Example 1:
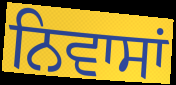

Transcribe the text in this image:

ਨਿਵਾਸਾਂ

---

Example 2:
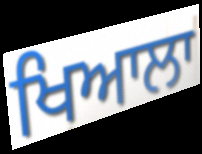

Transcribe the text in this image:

ਖਿਆਲਾ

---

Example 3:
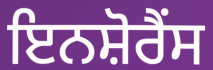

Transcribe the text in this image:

ਇਨਸ਼ੋਰੈਂਸ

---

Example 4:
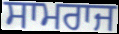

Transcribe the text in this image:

ਸਾਮਰਾਜ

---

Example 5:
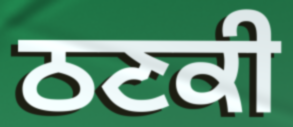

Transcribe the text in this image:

ਠਣਕੀ